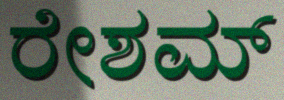
ರೇಶಮ್